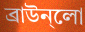
ব্রাউন্লো